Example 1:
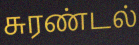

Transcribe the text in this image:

சுரண்டல்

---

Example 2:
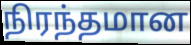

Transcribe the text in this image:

நிரந்தமான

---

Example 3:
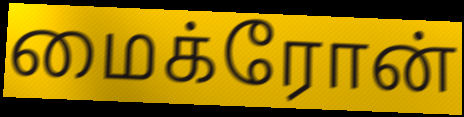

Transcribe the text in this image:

மைக்ரோன்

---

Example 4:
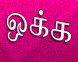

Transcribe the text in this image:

ஒக்க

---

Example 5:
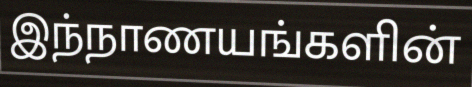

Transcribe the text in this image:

இந்நாணயங்களின்